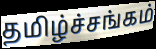
தமிழ்ச்சங்கம்